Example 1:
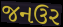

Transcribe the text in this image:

જનઉર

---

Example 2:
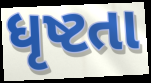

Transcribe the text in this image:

ધૃષ્ટતા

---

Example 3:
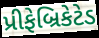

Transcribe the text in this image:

પ્રીફેબ્રિકેટેડ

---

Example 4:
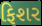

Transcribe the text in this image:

ફિશર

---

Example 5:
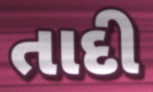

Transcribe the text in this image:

તાદી